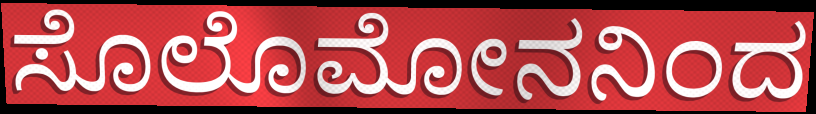
ಸೊಲೊಮೋನನಿಂದ